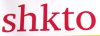
shkto